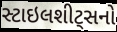
સ્ટાઇલશીટ્સનો